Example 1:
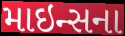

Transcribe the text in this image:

માઇન્સના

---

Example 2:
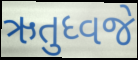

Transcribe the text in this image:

ઋતુધ્વજે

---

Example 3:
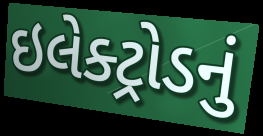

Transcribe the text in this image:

ઇલેક્ટ્રોડનું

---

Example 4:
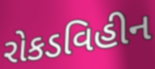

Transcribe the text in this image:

રોકડવિહીન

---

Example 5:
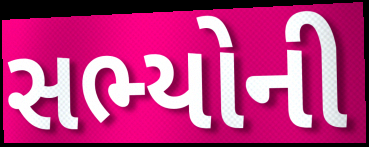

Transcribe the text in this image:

સભ્યોની